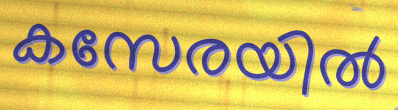
കസേരയിൽ